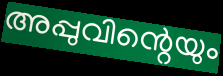
അപ്പുവിന്റെയും